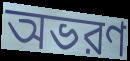
অভরণ